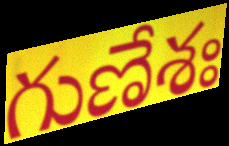
గుణేశః